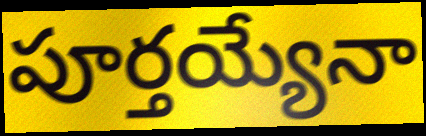
పూర్తయ్యేనా